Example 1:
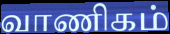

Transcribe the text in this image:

வாணிகம்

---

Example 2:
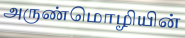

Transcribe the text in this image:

அருண்மொழியின்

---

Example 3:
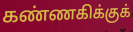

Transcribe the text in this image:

கண்ணகிக்குக்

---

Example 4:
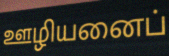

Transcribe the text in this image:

ஊழியனைப்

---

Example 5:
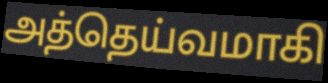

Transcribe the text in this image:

அத்தெய்வமாகி